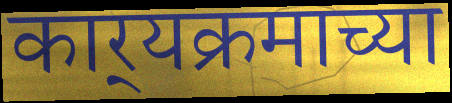
कार्यक्रमाच्या